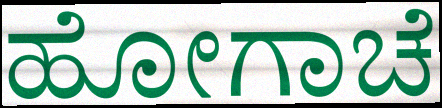
ಹೋಗಾಚೆ